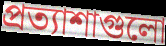
প্রত্যাশাগুলো